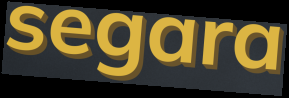
segara